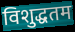
विशुद्धतम